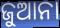
ଜୁଆନା